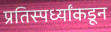
प्रतिस्पर्ध्यांकडून